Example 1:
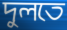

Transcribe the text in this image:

দুলতে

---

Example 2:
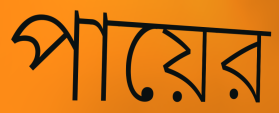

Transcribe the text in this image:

পায়ের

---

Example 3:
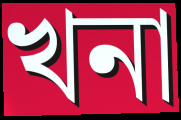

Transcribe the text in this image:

খনা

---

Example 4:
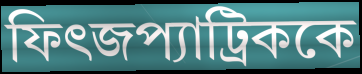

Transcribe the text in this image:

ফিৎজপ্যাট্রিককে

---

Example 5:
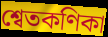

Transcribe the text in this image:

শ্বেতকণিকা